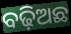
ବଢ଼ିଅଛ